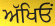
ਅੱਖਿਓਂ